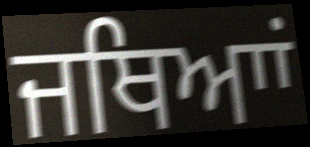
ਜਥਿਆਾਂ